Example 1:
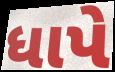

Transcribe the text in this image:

ધાપે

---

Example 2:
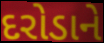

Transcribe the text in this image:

દરોડાને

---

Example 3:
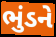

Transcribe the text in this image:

ભુંડને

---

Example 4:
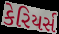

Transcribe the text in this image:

કેરિયર્સ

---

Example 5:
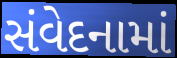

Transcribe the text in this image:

સંવેદનામાં